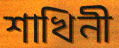
শাখিনী